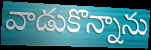
వాడుకొన్నాను